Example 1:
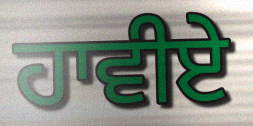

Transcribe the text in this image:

ਹਾਵੀਏ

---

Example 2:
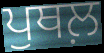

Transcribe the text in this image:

ਪੁਥਲ਼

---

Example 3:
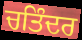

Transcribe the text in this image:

ਚਤਿੰਦਰ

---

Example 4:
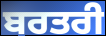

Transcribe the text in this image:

ਬਰਤਰੀ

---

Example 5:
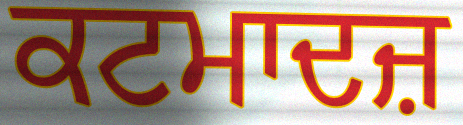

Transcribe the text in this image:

ਕਟਮਾਦਜ਼